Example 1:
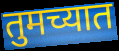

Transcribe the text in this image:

तुमच्यात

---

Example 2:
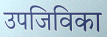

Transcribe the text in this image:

उपजिविका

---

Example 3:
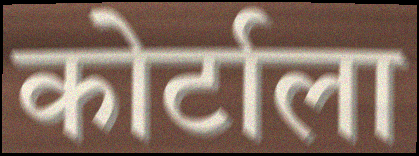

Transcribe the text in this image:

कोर्टाला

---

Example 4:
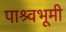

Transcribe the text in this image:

पाश्र्वभूमी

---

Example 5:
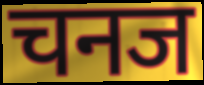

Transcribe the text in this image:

चनज